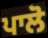
ਪਾਲੋ